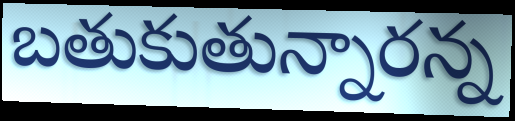
బతుకుతున్నారన్న